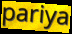
pariya